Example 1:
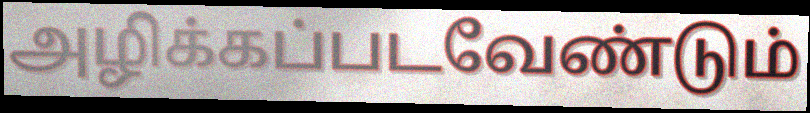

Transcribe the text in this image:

அழிக்கப்படவேண்டும்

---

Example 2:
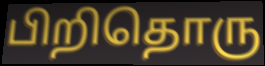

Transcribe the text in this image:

பிறிதொரு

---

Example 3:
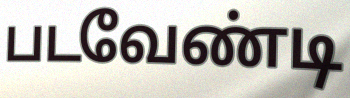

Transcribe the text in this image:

படவேண்டி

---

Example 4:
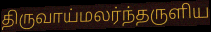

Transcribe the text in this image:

திருவாய்மலர்ந்தருளிய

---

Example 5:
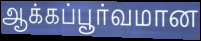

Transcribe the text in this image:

ஆக்கப்பூர்வமான